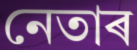
নেতাৰ